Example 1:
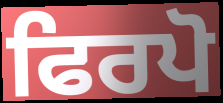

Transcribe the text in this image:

ਫਿਰਪੋ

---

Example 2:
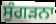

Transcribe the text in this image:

ਸੁੰਗੜਨਾ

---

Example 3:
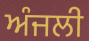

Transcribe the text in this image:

ਅੰਜਲੀ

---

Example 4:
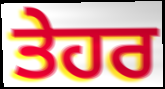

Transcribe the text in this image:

ਤੇਹਰ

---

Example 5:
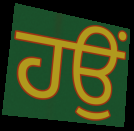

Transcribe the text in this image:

ਹਉਂ